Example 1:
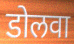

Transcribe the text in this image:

डोलवा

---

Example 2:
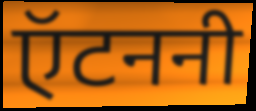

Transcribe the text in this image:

ऍटननी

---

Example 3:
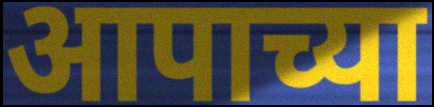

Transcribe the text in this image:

आपाच्या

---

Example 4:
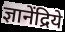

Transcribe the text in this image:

ज्ञानेंद्रिये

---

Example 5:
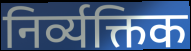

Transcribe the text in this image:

निर्व्यक्तिक